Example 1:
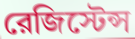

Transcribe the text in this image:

রেজিস্টেন্স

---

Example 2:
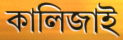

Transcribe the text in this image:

কালিজাই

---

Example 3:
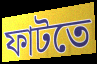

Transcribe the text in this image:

ফাটতে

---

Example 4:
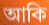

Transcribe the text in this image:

আকি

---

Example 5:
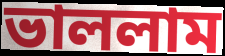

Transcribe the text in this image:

ভাললাম